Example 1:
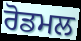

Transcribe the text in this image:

ਰੋਡਮਲ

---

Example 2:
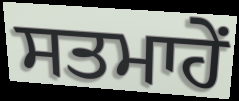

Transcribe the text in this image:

ਸਤਮਾਹੇਂ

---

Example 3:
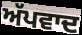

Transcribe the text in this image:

ਅੱਪਵਾਦ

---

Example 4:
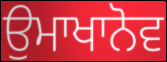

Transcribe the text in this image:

ਉਮਾਖਾਨੋਵ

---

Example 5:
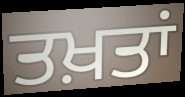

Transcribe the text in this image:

ਤਖ਼ਤਾਂ